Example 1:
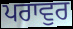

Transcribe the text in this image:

ਪਰਾਵੁਰ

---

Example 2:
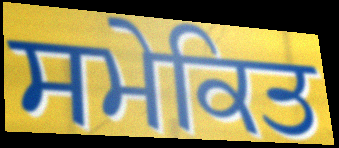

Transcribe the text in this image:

ਸਮੇਕਿਤ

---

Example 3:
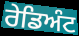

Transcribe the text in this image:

ਰੇਡਿਅੰਟ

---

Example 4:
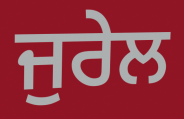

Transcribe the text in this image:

ਜੁਰੇਲ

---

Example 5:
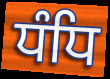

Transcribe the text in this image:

ਧੰਧਿ